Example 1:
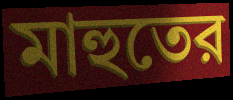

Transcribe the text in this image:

মাহুতের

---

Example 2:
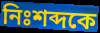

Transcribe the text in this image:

নিঃশব্দকে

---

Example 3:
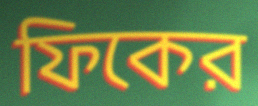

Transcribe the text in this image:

ফিকের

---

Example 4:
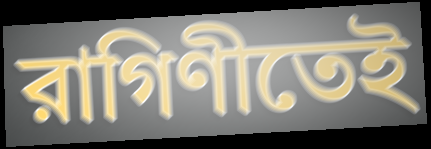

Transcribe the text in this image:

রাগিণীতেই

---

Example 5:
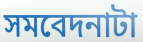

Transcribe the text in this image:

সমবেদনাটা